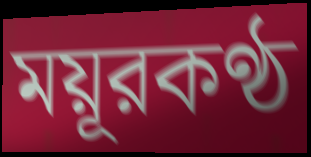
ময়ূরকণ্ঠ